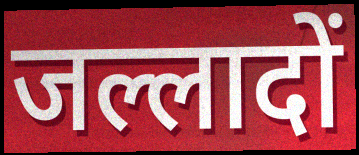
जल्लादों